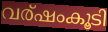
വര്ഷംകൂടി